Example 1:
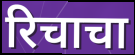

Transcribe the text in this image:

रिचाचा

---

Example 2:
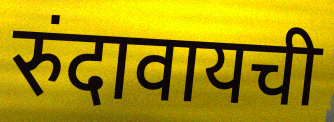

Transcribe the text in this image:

रुंदावायची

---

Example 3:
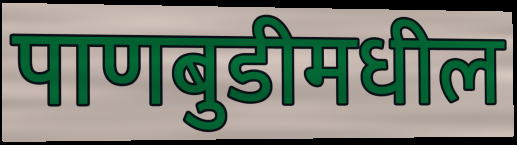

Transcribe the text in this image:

पाणबुडीमधील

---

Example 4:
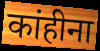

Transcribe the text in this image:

कांहीना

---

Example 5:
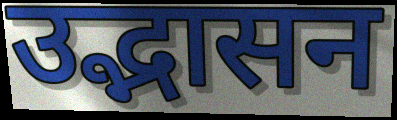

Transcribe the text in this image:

उद्भासन